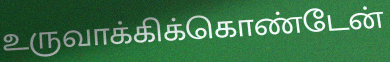
உருவாக்கிக்கொண்டேன்